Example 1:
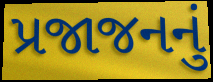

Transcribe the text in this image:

પ્રજાજનનું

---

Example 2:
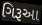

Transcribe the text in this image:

ગિરૂઆ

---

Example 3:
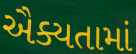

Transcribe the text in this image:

ઐક્યતામાં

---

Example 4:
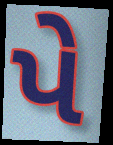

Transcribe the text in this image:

પે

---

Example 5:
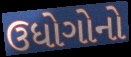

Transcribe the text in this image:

ઉધોગોનો